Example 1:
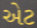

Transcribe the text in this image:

એટ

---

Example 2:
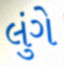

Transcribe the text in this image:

લુંગે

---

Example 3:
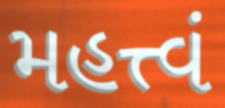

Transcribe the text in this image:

મહત્ત્વં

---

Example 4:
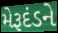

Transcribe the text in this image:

મેરૂદંડને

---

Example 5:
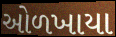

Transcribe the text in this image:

ઓળખાયા